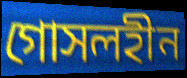
গোসলহীন